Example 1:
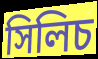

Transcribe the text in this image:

সিলিচ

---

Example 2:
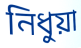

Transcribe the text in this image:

নিধুয়া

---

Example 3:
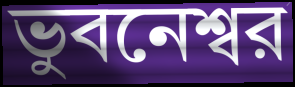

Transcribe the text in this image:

ভুবনেশ্বর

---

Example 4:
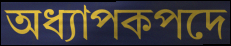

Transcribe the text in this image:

অধ্যাপকপদে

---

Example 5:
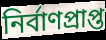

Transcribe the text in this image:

নির্বাণপ্রাপ্ত